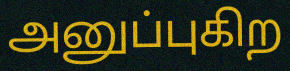
அனுப்புகிற